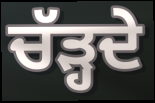
ਚੱੜ੍ਹਦੇ